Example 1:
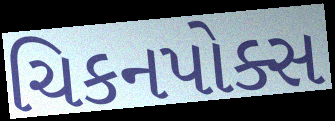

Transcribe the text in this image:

ચિકનપોક્સ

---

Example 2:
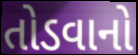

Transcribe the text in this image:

તોડવાનો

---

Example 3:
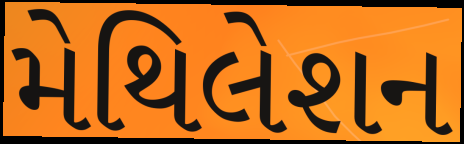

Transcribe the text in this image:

મેથિલેશન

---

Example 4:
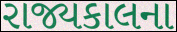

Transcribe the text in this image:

રાજ્યકાલના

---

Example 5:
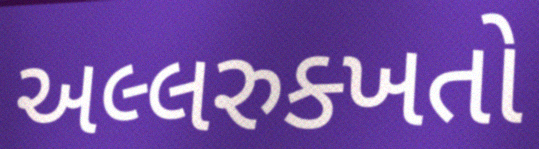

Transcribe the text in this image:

અલ્લરુક્ખતો